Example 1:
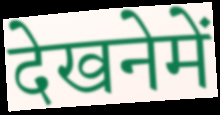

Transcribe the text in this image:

देखनेमें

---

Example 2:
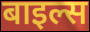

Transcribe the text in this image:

बाइल्स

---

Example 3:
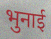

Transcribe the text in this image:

भुनाई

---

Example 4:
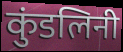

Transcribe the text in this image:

कुंडलिनी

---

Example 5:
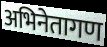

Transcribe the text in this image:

अभिनेतागण